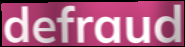
defraud